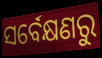
ସର୍ବେକ୍ଷଣରୁ